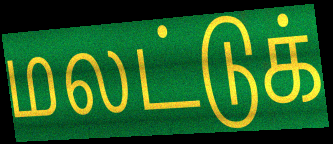
மலட்டுக்